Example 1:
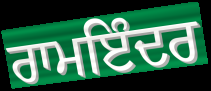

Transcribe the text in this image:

ਰਾਮਇੰਦਰ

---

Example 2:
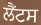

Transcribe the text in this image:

ਲੈਂਟਸ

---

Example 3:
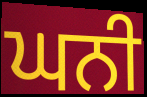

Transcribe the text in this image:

ਘਨੀ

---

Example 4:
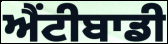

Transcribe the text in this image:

ਐਂਟੀਬਾਡੀ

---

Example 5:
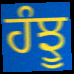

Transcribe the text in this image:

ਹੰਝੂ